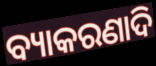
ବ୍ୟାକରଣାଦି